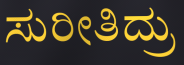
ಸುರೀತಿದ್ರು